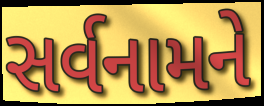
સર્વનામને